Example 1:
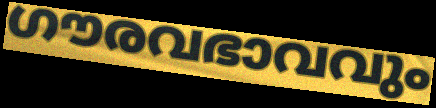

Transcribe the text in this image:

ഗൗരവഭാവവും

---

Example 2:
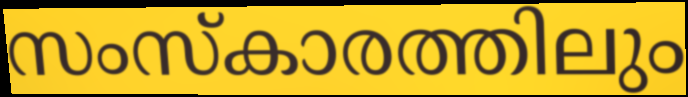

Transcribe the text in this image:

സംസ്കാരത്തിലും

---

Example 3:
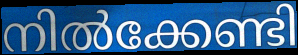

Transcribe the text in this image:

നിൽക്കേണ്ടി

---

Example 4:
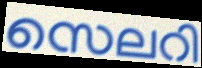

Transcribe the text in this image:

സെലറി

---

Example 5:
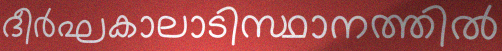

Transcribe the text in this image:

ദീർഘകാലാടിസ്ഥാനത്തിൽ